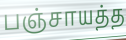
பஞ்சாயத்த